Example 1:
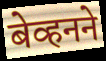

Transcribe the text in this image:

बेव्हनने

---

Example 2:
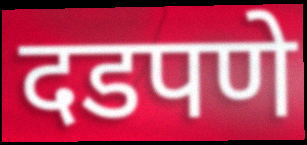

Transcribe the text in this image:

दडपणे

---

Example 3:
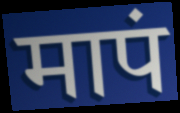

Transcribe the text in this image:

मापं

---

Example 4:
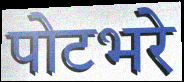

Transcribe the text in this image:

पोटभरे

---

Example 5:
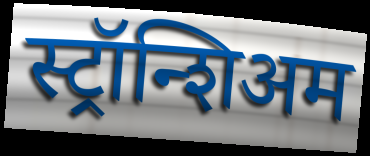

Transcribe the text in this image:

स्ट्रॉन्शिअम